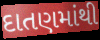
દાતણમાંથી